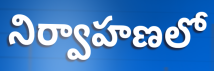
నిర్వాహణలో